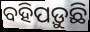
ବହିପଡ଼ୁଛି